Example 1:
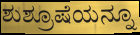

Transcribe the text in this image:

ಶುಶ್ರೂಷೆಯನ್ನೂ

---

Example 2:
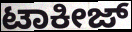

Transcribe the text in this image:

ಟಾಕೀಜ್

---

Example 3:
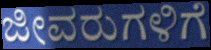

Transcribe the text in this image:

ಜೀವರುಗಳಿಗೆ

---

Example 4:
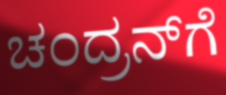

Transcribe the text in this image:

ಚಂದ್ರನ್‌ಗೆ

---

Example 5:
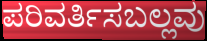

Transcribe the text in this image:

ಪರಿವರ್ತಿಸಬಲ್ಲವು